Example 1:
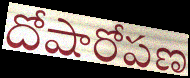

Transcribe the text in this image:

దోషారోపణ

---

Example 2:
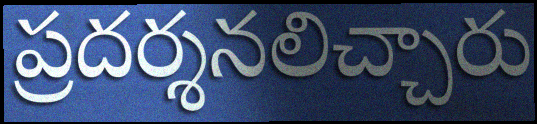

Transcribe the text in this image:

ప్రదర్శనలిచ్చారు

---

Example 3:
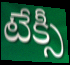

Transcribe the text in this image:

టేక్సీ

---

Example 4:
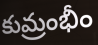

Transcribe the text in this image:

కుమ్రంభీం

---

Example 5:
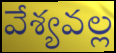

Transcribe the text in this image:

వేశ్యవల్ల